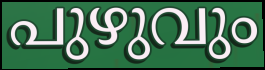
പുഴുവും